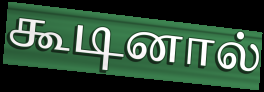
கூடினால்